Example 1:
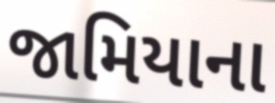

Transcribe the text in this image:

જામિયાના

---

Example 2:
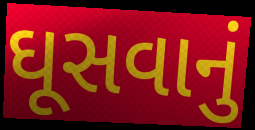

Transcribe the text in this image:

ઘૂસવાનું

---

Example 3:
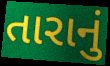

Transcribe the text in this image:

તારાનું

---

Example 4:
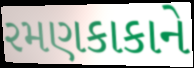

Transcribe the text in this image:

રમણકાકાને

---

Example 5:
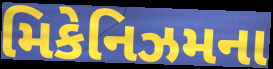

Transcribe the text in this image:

મિકેનિઝમના